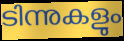
ടിന്നുകളും